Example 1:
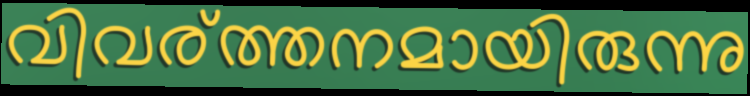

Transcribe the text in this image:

വിവര്ത്തനമായിരുന്നു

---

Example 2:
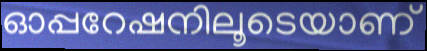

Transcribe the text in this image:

ഓപ്പറേഷനിലൂടെയാണ്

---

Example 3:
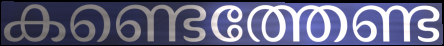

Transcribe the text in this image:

കണ്ടെത്തേണ്ട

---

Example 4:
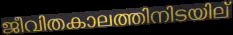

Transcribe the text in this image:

ജീവിതകാലത്തിനിടയില്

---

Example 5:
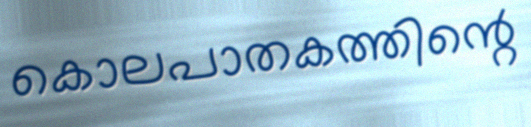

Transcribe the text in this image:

കൊലപാതകത്തിന്റെ